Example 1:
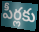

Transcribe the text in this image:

పీర్లకు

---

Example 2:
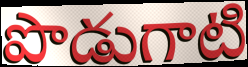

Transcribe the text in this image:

పొడుగాటి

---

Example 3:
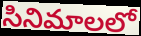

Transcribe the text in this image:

సినిమాలలో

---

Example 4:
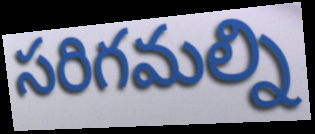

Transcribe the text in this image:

సరిగమల్ని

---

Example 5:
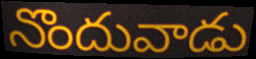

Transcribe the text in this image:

నొందువాడు